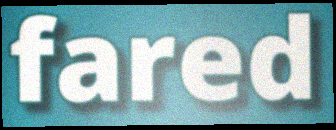
fared